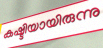
കഷ്ടിയായിരുന്നു